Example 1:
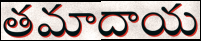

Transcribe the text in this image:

తమాదాయ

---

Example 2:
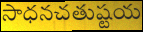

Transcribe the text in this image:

సాధనచతుష్టయ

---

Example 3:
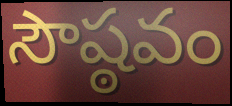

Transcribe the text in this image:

సౌష్ఠవం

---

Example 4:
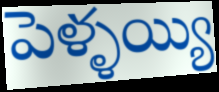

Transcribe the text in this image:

పెళ్ళయ్యి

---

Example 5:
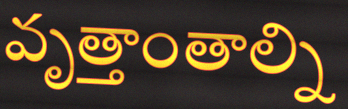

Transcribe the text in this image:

వృత్తాంతాల్ని